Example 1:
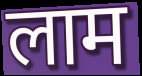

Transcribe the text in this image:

लाम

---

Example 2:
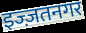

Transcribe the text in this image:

इज्ज़तनगर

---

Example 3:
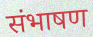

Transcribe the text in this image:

संभाषण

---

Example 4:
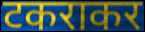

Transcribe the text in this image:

टकराकर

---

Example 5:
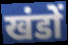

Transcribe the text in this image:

खंडों